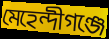
মেহেন্দীগঞ্জে